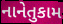
નાનેતુકામ